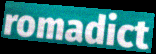
romadict